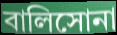
বালিসোনা